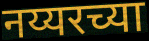
नय्यरच्या